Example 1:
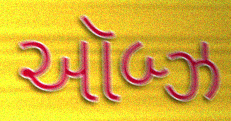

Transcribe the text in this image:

ઑબ્ઝ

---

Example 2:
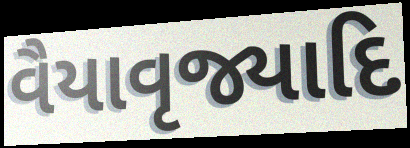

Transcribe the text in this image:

વૈયાવૃજ્યાદિ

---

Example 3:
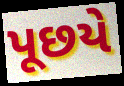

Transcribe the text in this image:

પૂછયે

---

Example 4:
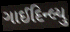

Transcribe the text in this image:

ગાઈદિન્લ્યુ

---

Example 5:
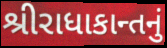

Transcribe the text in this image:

શ્રીરાધાકાન્તનું